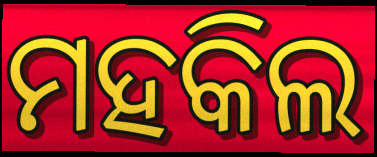
ମହକିଲ